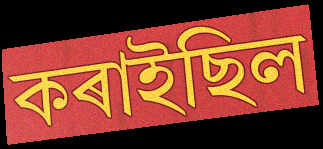
কৰাইছিল